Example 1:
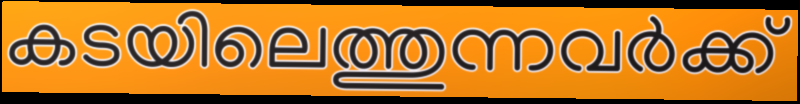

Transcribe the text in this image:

കടയിലെത്തുന്നവർക്ക്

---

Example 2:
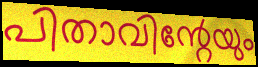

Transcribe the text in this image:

പിതാവിന്റേയും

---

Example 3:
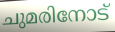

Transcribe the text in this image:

ചുമരിനോട്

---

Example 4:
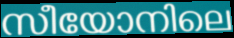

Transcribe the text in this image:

സീയോനിലെ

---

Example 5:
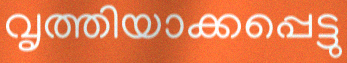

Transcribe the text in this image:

വൃത്തിയാക്കപ്പെട്ടു